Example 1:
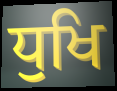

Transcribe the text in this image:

ਧੁਖਿ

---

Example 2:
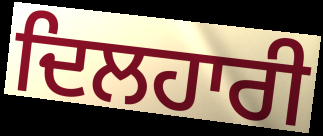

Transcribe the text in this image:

ਦਿਲਹਾਰੀ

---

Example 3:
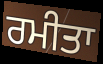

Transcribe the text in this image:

ਰਮੀਤਾ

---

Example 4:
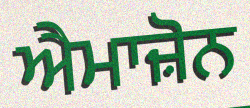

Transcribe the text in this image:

ਐਮਾਜ਼ੋਨ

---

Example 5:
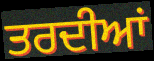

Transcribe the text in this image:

ਤਰਦੀਆਂ